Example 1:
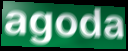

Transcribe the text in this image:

agoda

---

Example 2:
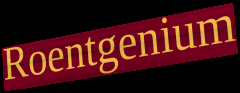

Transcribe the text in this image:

Roentgenium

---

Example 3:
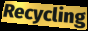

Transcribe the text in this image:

Recycling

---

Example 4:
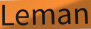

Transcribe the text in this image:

Leman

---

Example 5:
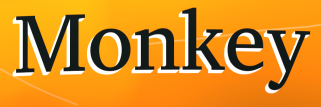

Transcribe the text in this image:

Monkey